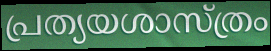
പ്രത്യയശാസ്ത്രം